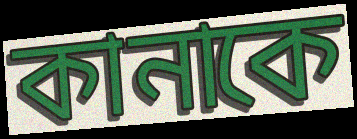
কানাকে